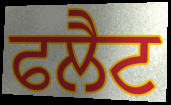
ਫਲੈਟ